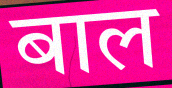
बाल